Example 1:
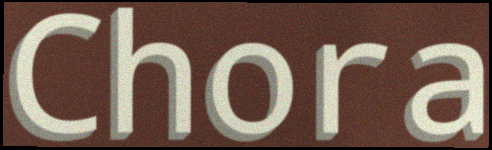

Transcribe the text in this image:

Chora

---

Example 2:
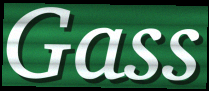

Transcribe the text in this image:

Gass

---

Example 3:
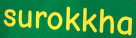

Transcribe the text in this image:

surokkha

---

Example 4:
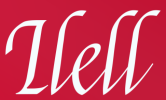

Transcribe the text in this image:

Ilell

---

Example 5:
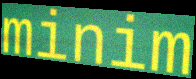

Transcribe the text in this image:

minim